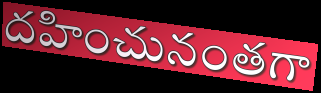
దహించునంతగా